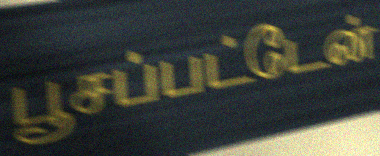
பூசப்பட்டேன்